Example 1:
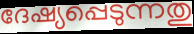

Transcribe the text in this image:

ദേഷ്യപ്പെടുന്നതു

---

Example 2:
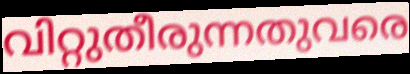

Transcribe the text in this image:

വിറ്റുതീരുന്നതുവരെ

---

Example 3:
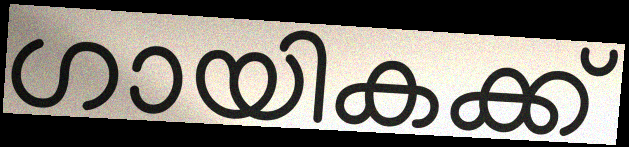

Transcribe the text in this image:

ഗായികക്ക്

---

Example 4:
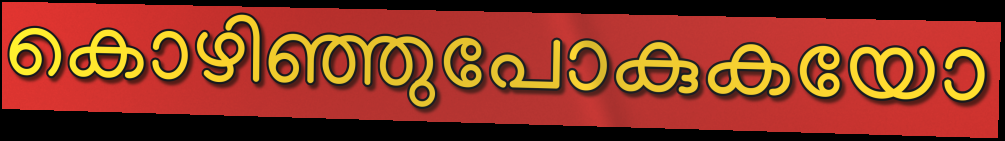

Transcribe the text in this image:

കൊഴിഞ്ഞുപോകുകയോ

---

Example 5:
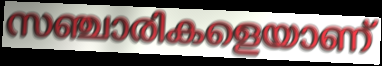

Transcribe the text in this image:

സഞ്ചാരികളെയാണ്